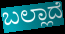
ಬಲ್ಲಾದೆ